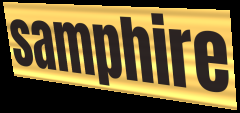
samphire